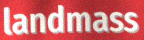
landmass